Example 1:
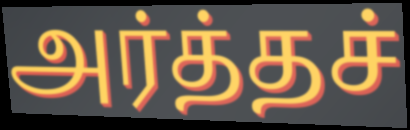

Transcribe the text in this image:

அர்த்தச்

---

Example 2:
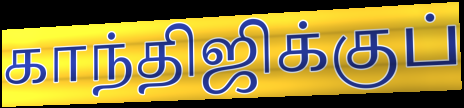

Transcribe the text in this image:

காந்திஜிக்குப்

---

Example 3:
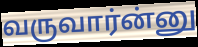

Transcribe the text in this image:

வருவார்ன்னு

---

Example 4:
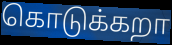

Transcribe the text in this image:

கொடுக்கறா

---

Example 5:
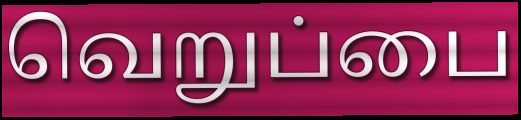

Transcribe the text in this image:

வெறுப்பை